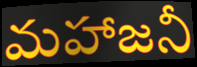
మహాజనీ